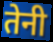
तेनी